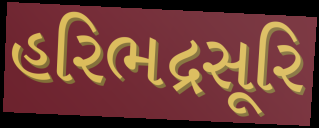
હરિભદ્રસૂરિ